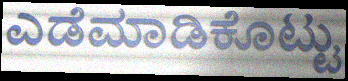
ಎಡೆಮಾಡಿಕೊಟ್ಟು